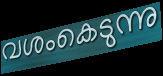
വശംകെടുന്നു